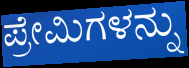
ಪ್ರೇಮಿಗಳನ್ನು